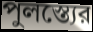
পুলস্ত্যের